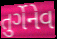
તુર્ગેનેવ